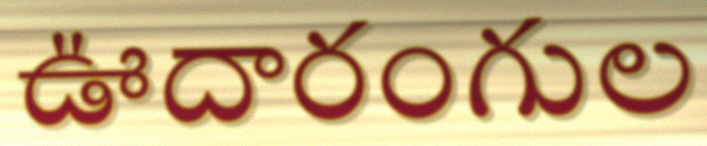
ఊదారంగుల